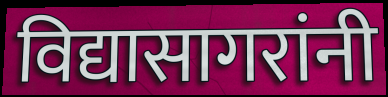
विद्यासागरांनी